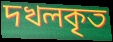
দখলকৃত